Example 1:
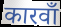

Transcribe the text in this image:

कारवाँ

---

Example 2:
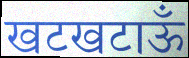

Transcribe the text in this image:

खटखटाऊँ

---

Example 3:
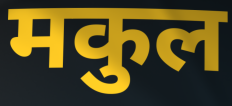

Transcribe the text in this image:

मकुल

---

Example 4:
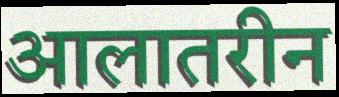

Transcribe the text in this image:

आलातरीन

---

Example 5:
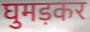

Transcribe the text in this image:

घुमड़कर